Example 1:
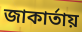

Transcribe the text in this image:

জাকার্তায়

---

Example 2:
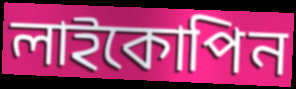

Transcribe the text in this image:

লাইকোপিন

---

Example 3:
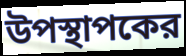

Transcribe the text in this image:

উপস্থাপকের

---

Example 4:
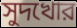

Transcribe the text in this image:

সুদখোর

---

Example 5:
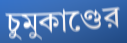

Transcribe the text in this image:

চুমুকাণ্ডের